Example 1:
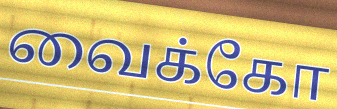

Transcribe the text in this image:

வைக்கோ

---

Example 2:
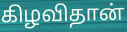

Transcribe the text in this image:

கிழவிதான்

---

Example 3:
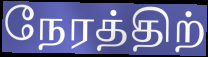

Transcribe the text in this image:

நேரத்திற்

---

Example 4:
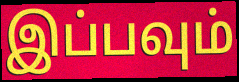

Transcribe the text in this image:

இப்பவும்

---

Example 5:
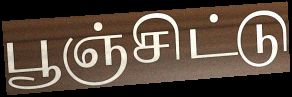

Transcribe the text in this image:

பூஞ்சிட்டு